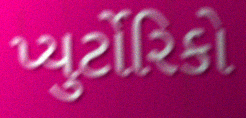
પ્યુર્ટોરિકો